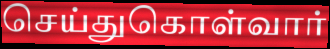
செய்துகொள்வார்